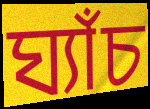
ঘ্যাঁচ